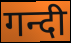
गन्दी